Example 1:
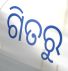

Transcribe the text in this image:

ଗିତରୁ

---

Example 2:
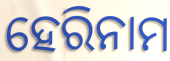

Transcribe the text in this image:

ହେରିନାମ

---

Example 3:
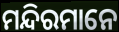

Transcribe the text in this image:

ମନ୍ଦିରମାନେ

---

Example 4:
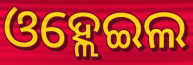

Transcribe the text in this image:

ଓହ୍ଲେଇଲ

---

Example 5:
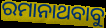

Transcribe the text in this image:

ରମାନାଥବାବୁ